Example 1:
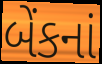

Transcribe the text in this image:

બેંકનાં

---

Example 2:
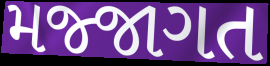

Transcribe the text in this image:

મજ્જાગત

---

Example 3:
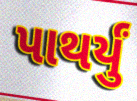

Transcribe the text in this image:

પાથર્યું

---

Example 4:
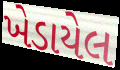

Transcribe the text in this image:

ખેડાયેલ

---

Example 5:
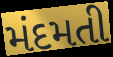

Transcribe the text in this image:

મંદમતી